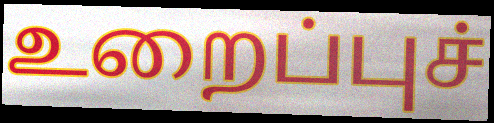
உறைப்புச்